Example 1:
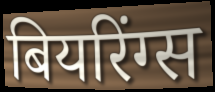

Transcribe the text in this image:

बियरिंग्स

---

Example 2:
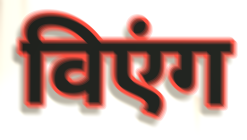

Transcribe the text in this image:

विएंग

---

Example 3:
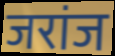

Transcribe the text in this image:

जरांज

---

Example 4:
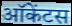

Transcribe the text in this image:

ऑकेंटस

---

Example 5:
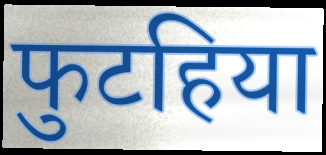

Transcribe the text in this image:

फुटहिया